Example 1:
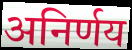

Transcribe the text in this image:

अनिर्णय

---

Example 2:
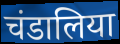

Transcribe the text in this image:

चंडालिया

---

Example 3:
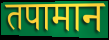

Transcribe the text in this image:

तपामान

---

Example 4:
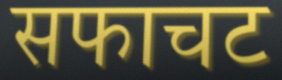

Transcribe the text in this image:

सफाचट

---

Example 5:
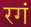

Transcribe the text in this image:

रगं